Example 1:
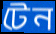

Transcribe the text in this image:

টেন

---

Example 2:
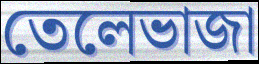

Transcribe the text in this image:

তেলেভাজা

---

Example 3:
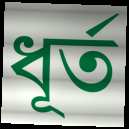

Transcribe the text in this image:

ধূর্ত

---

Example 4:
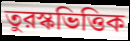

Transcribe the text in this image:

তুরস্কভিত্তিক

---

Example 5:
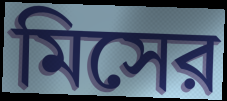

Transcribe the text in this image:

মিসের